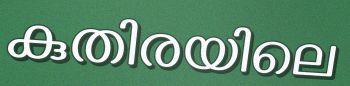
കുതിരയിലെ